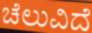
ಚೆಲುವಿದೆ